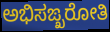
ಅಭಿಸಙ್ಖರೋತಿ